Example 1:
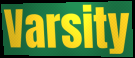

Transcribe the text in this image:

Varsity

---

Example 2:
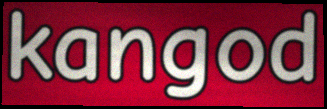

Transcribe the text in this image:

kangod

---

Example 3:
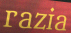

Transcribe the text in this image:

razia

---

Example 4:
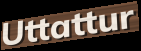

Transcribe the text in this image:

Uttattur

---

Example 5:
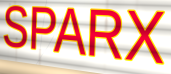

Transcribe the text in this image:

SPARX